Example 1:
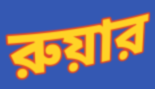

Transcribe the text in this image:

রুয়ার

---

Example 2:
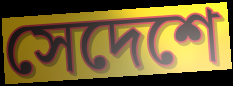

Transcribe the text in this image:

সেদেশে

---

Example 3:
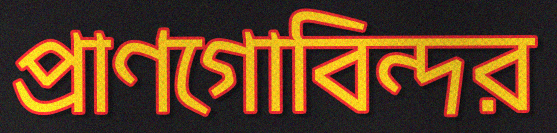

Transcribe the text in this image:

প্রাণগোবিন্দর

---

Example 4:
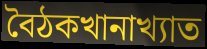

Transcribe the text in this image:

বৈঠকখানাখ্যাত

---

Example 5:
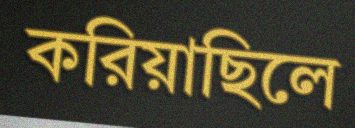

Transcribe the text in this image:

করিয়াছিলে